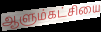
ஆளும்கட்சியை